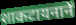
शाकटायनानें